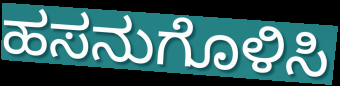
ಹಸನುಗೊಳಿಸಿ